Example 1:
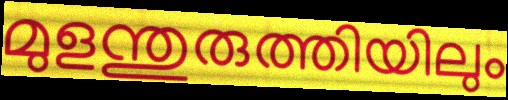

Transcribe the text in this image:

മുളന്തുരുത്തിയിലും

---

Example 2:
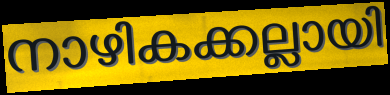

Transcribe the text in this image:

നാഴികക്കല്ലായി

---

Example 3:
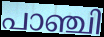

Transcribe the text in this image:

പാഞ്ചി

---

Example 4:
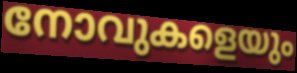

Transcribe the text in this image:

നോവുകളെയും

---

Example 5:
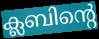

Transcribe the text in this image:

ക്ലബിന്റെ